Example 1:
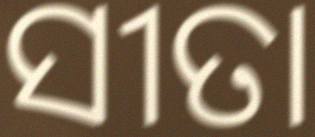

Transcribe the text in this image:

ସୀତା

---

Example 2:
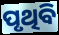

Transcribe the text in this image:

ପୃଥିବି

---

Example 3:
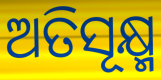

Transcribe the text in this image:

ଅତିସୂକ୍ଷ୍ମ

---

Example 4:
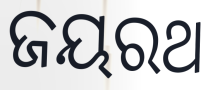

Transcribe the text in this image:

ଜୟରଥ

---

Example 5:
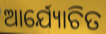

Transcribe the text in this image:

ଆର୍ଯ୍ୟୋଚିତ